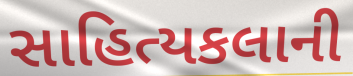
સાહિત્યકલાની